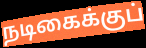
நடிகைக்குப்